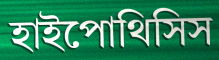
হাইপোথিসিস